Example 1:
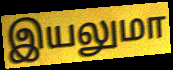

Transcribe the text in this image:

இயலுமா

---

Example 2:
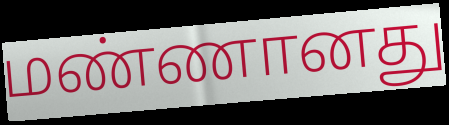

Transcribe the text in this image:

மண்ணானது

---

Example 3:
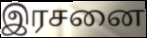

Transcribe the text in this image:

இரசனை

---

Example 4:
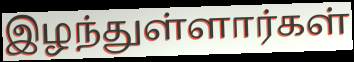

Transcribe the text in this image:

இழந்துள்ளார்கள்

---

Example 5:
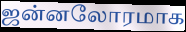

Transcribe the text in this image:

ஜன்னலோரமாக